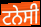
ਟਨੇਸੀ